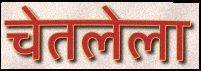
चेतलेला